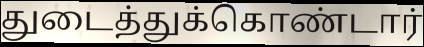
துடைத்துக்கொண்டார்